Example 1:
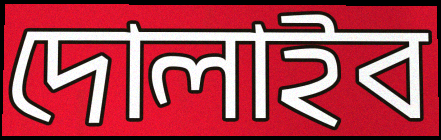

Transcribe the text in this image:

দোলাইব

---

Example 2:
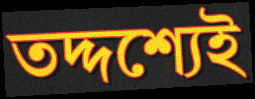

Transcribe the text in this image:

তদ্দশ্যেই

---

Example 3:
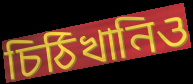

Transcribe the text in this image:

চিঠিখানিও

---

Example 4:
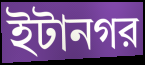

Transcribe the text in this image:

ইটানগর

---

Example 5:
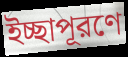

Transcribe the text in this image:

ইচ্ছাপূরণে